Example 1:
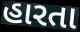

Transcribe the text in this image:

હારતા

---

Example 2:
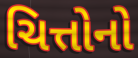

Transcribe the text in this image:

ચિત્તોનો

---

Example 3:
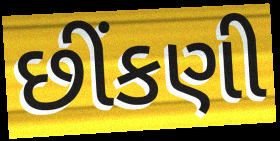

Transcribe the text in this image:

છીંકણી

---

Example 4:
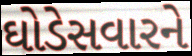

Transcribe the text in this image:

ઘોડેસવારને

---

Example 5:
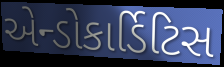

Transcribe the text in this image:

એન્ડોકાર્ડિટિસ